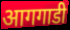
आगगाडी